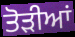
ਤੋਡ਼ੀਆਂ